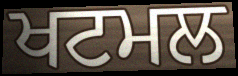
ਖਟਮਲ